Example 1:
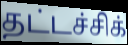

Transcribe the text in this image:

தட்டச்சிக்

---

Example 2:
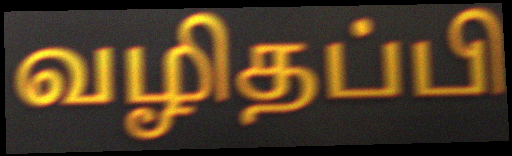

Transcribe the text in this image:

வழிதப்பி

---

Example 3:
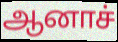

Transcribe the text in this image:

ஆனாச்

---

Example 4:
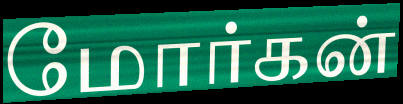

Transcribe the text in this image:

மோர்கன்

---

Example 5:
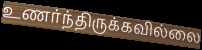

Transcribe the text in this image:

உணர்ந்திருக்கவில்லை